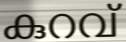
കുറവ്